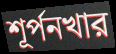
শূর্পনখার